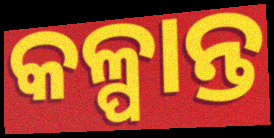
କଳ୍ପାନ୍ତ